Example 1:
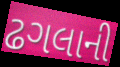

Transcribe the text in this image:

ઢગલાની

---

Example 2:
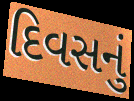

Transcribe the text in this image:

દિવસનું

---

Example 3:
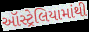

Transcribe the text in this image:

ઑસ્ટ્રેલિયામાંથી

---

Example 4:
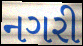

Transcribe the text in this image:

નગરી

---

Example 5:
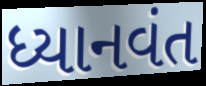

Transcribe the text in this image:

ધ્યાનવંત